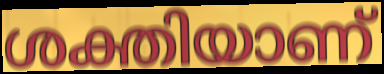
ശക്തിയാണ്